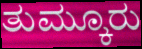
ತುಮ್ಕೂರು